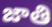
జాతి